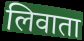
लिवाता